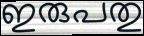
ഇരുപതു